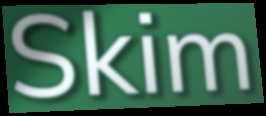
Skim